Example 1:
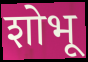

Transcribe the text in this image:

शोभू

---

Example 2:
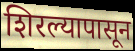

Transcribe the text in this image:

शिरल्यापासून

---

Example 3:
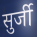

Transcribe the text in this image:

सुर्जी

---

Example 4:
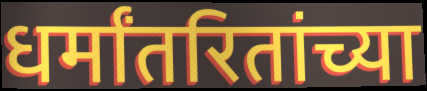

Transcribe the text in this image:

धर्मांतरितांच्या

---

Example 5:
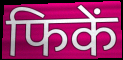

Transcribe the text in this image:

फिकें